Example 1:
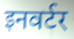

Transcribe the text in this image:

इनवर्टर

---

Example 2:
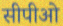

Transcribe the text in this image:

सीपीओ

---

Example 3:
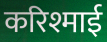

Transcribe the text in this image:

करिश्माई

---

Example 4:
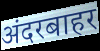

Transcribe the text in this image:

अंदरबाहर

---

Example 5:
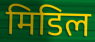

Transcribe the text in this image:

मिडिल